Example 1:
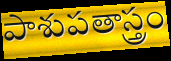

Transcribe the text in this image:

పాశుపతాస్త్రం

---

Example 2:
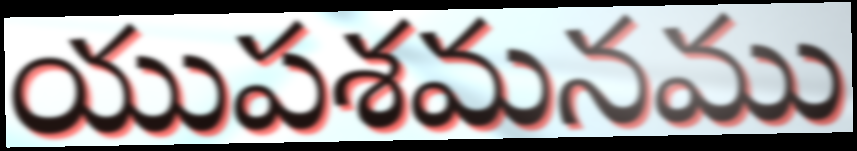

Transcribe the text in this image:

యుపశమనము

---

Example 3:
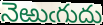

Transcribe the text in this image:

నెఱుఁగుదు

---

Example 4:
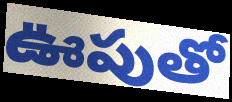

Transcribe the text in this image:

ఊపుతో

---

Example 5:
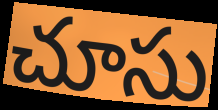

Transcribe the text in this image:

చూసు